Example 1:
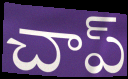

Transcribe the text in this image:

చాప్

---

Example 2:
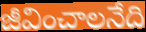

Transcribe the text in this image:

జీవించాలనేది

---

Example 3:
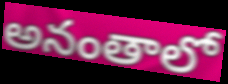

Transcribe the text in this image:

అనంతాలో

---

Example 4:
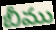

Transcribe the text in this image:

బీము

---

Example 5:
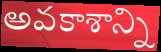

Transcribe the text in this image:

అవకాశాన్ని